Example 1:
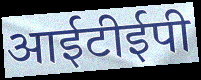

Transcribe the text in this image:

आईटीईपी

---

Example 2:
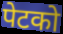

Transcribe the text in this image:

पेटको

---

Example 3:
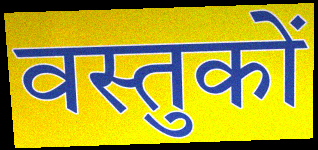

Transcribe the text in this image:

वस्तुकों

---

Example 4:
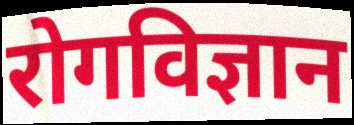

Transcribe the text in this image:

रोगविज्ञान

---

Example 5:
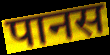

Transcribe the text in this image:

पानस